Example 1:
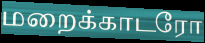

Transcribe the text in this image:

மறைக்காடரோ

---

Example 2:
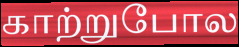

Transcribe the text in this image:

காற்றுபோல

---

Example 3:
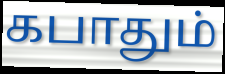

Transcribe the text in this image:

கபாதும்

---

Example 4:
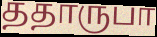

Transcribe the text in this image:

ததாருபா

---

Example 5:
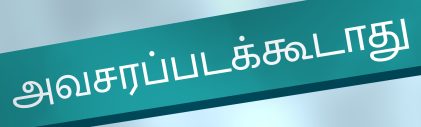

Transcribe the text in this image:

அவசரப்படக்கூடாது